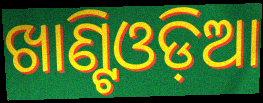
ଖାଣ୍ଟିଓଡ଼ିଆ